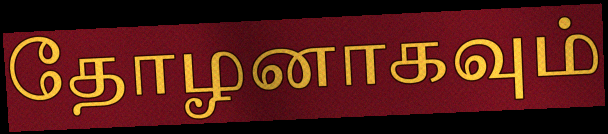
தோழனாகவும்